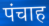
पंचाह